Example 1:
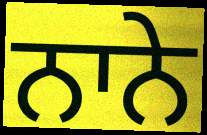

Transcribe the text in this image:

ਨਾਨੇ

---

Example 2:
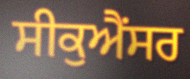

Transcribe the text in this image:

ਸੀਕੁਐਂਸਰ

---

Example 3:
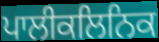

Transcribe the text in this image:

ਪਾਲੀਕਲਿਨਿਕ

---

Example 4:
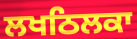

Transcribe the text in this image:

ਲਖਠਿਲਕਾ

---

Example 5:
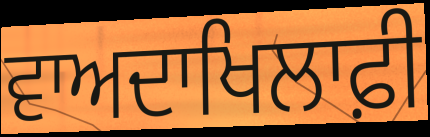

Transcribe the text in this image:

ਵਾਅਦਾਖਿਲਾਫ਼ੀ